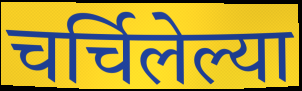
चर्चिलेल्या